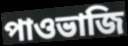
পাওভাজি